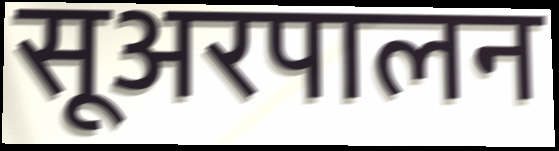
सूअरपालन